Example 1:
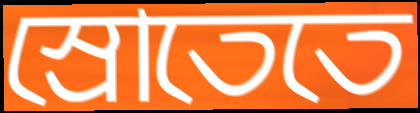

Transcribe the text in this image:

স্রোতেতে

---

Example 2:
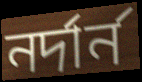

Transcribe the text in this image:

নর্দার্ন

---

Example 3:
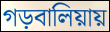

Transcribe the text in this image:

গড়বালিয়ায়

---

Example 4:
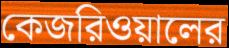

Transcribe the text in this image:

কেজরিওয়ালের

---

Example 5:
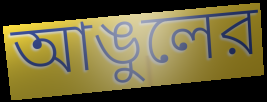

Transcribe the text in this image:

আঙুলের